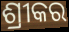
ଶ୍ରୀକର